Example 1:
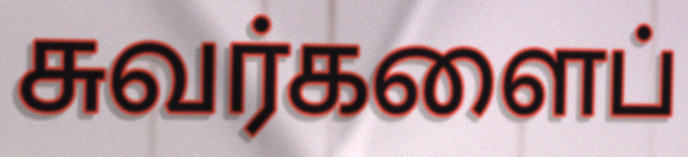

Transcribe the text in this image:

சுவர்களைப்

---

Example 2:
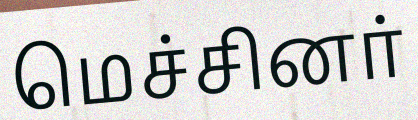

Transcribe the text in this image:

மெச்சினர்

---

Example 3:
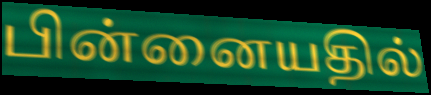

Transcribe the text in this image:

பின்னையதில்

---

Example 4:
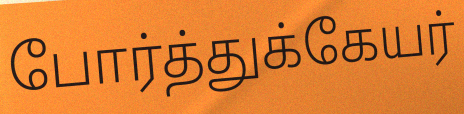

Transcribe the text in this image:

போர்த்துக்கேயர்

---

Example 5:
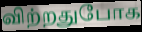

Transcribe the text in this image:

விற்றதுபோக